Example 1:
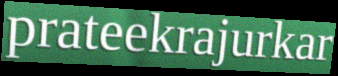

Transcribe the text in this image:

prateekrajurkar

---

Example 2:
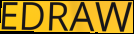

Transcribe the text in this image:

EDRAW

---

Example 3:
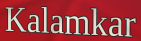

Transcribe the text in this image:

Kalamkar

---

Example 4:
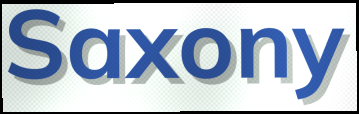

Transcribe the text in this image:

Saxony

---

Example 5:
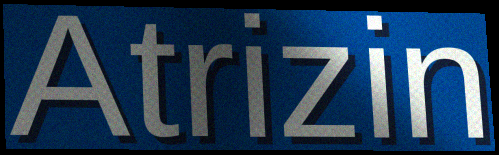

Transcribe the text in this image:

Atrizin